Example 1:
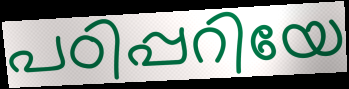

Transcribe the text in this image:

പഠിപ്പറിയേ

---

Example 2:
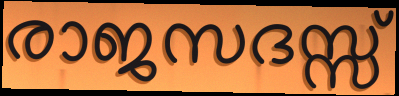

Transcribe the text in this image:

രാജസദസ്സ്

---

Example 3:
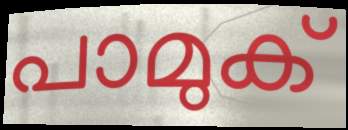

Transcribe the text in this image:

പാമുക്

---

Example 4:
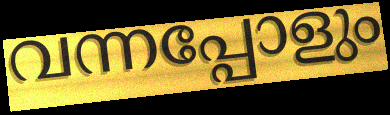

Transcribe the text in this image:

വന്നപ്പോളും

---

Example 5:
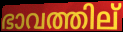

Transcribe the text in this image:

ഭാവത്തില്